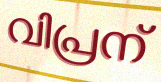
വിപ്രന്